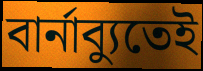
বার্নাব্যুতেই